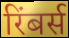
रिंबर्स